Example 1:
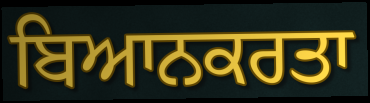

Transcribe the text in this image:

ਬਿਆਨਕਰਤਾ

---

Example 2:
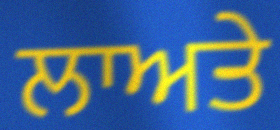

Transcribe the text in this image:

ਲਾਅਤੇ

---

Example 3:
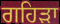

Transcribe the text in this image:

ਗਹਿੜਾ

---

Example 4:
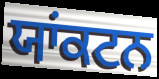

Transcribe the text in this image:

ਯਾਂਕਟਨ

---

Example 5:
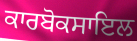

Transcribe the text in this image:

ਕਾਰਬੋਕਸਾਇਲ